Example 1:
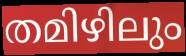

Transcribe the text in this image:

തമിഴിലും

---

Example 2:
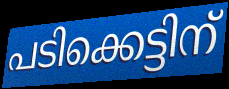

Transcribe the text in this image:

പടിക്കെട്ടിന്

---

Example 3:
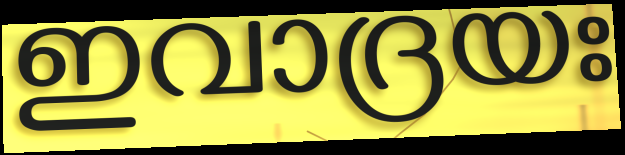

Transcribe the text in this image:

ഇവാദ്രയഃ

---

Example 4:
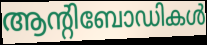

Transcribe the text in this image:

ആന്റിബോഡികൾ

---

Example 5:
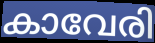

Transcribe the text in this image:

കാവേരി